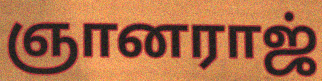
ஞானராஜ்